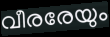
വീരരേയും